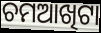
ଚମଆଖିଟା